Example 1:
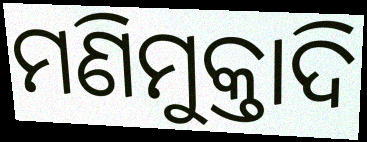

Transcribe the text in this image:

ମଣିମୁକ୍ତାଦି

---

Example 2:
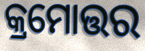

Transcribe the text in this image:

କ୍ରମୋତ୍ତର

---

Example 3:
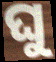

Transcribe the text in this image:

ଘୁ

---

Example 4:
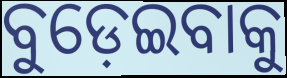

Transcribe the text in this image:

ବୁଡ଼େଇବାକୁ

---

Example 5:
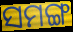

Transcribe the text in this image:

ସମଙ୍ଗ